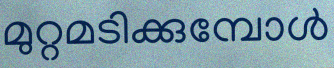
മുറ്റമടിക്കുമ്പോൾ